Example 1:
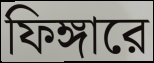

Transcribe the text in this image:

ফিঙ্গারে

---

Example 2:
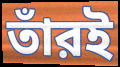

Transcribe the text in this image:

তাঁরই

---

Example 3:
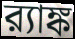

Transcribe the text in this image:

র‍্যাঙ্ক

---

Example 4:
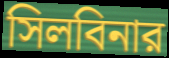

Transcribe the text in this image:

সিলবিনার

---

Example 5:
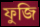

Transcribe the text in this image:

ফুজি